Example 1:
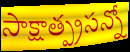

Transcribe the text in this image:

సాక్షాత్ప్రసన్నో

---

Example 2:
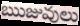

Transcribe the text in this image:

ఋజువులు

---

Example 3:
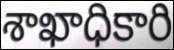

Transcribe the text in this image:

శాఖాధికారి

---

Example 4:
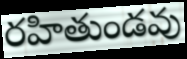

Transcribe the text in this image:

రహితుండవు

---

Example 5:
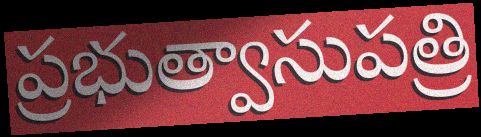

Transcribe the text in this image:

ప్రభుత్వాసుపత్రి